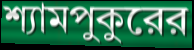
শ্যামপুকুরের